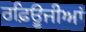
ਰਫ਼ਿਊਜੀਆਂ